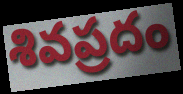
శివప్రదం